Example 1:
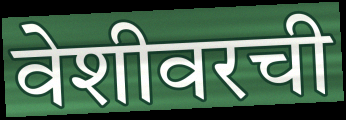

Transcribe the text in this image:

वेशीवरची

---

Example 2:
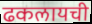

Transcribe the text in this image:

ढकलायची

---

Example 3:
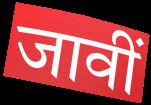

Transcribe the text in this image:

जावीं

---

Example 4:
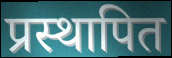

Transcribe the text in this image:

प्रस्थापित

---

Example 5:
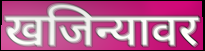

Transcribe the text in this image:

खजिन्यावर